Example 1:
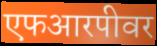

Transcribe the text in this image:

एफआरपीवर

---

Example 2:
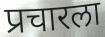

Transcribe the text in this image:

प्रचारला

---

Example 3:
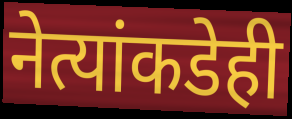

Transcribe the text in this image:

नेत्यांकडेही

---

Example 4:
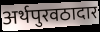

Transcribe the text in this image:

अर्थपुरवठादार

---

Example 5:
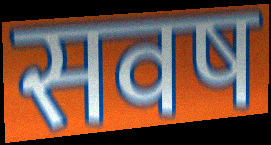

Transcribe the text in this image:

सवष